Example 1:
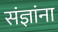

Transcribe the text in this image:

संज्ञांना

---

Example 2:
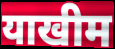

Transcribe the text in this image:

याखीम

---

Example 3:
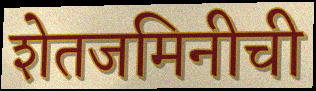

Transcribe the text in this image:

शेतजमिनीची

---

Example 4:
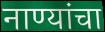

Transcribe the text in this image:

नाण्यांचा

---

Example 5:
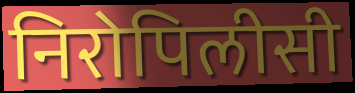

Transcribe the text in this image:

निरोपिलीसी